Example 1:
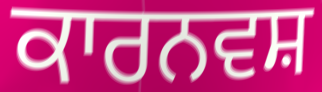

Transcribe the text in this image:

ਕਾਰਨਵਸ਼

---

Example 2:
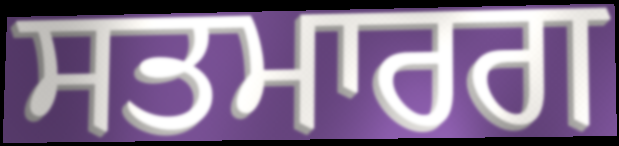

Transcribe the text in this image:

ਸਤਮਾਰਗ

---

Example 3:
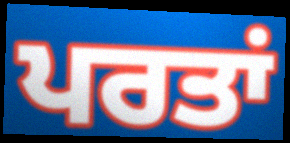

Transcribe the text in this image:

ਪਰਤਾਂ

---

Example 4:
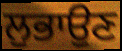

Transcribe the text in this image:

ਲੁਭਾਉਣ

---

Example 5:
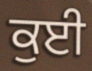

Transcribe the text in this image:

ਕੁਈ